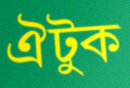
ঐটুক